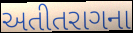
અતીતરાગના